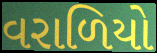
વરાળિયો